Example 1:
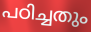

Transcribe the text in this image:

പഠിച്ചതും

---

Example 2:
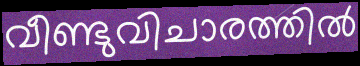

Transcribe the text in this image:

വീണ്ടുവിചാരത്തിൽ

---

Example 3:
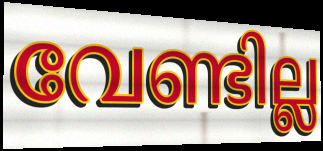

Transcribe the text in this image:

വേണ്ടില്ല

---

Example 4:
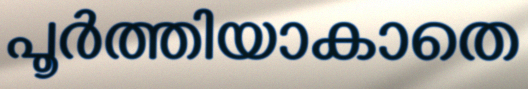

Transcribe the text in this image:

പൂർത്തിയാകാതെ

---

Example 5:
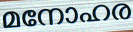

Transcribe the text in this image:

മനോഹര